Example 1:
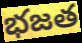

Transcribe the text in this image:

భజత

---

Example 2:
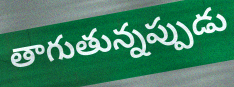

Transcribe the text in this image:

తాగుతున్నప్పుడు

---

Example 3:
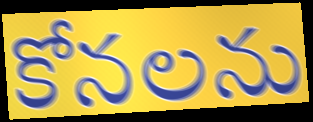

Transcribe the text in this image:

కోనలను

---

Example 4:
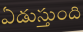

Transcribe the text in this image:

ఏడుస్తుంది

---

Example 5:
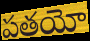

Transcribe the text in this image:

పతయో